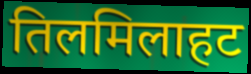
तिलमिलाहट